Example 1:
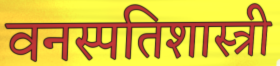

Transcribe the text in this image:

वनस्पतिशास्त्री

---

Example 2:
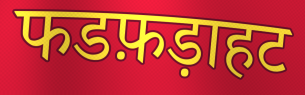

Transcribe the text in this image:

फडफ़ड़ाहट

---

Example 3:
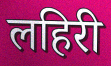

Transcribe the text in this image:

लहिरी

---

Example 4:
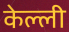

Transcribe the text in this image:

केल्ली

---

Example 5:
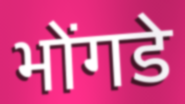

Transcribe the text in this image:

भोंगडे